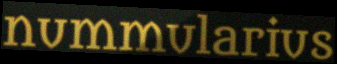
nummularius